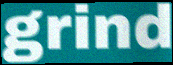
grind